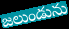
జలుండును